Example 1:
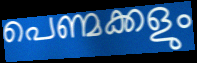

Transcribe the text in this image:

പെണ്മക്കളും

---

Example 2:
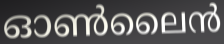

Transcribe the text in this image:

ഓൺലൈൻ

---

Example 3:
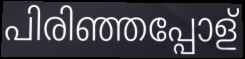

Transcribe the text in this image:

പിരിഞ്ഞപ്പോള്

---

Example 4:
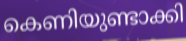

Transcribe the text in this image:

കെണിയുണ്ടാക്കി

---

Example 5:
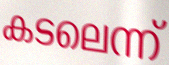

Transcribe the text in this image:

കടലെന്ന്